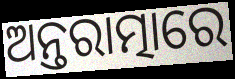
ଅନ୍ତରାତ୍ମାରେ